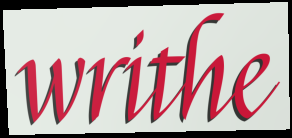
writhe